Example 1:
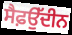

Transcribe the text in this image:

ਸੈਫ਼ਉੱਦੀਨ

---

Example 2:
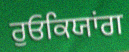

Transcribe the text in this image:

ਰੁਓਕਿਯਾਂਗ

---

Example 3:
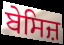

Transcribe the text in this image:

ਬੇਸਿਜ਼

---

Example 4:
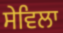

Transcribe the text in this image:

ਸੇਵਿਲਾ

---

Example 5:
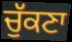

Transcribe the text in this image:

ਚੁੱਕਣਾ